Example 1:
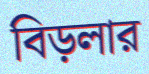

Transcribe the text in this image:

বিড়লার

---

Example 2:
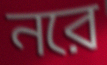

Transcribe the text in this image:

নরে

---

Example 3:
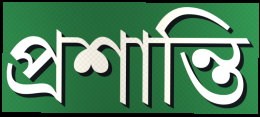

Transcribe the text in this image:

প্রশান্তি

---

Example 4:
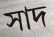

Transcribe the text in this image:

সাদ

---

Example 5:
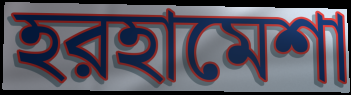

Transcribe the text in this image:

হরহামেশা